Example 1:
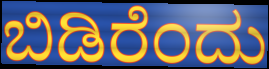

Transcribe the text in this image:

ಬಿಡಿರೆಂದು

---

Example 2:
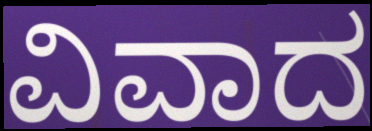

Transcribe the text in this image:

ವಿವಾದ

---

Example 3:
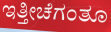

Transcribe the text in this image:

ಇತ್ತೀಚೆಗಂತೂ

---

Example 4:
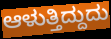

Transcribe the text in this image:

ಆಳುತ್ತಿದ್ದುದು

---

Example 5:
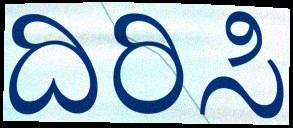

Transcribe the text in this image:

ದಿರಿಸಿ